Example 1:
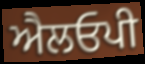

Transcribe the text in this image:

ਐਲਓਪੀ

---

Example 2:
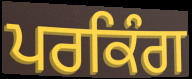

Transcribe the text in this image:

ਪਰਕਿੰਗ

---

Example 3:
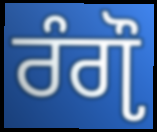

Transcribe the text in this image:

ਰੰਗੵੌ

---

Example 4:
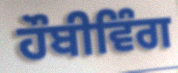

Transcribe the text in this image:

ਹੌਬੀਵਿੰਗ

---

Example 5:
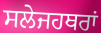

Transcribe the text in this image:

ਸਲੇਜਹਥਰਾਂ